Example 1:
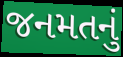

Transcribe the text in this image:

જનમતનું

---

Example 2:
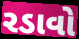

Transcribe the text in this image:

રડાવો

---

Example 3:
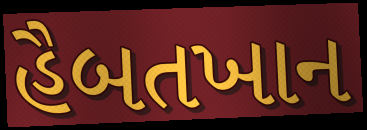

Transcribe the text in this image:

હૈબતખાન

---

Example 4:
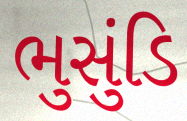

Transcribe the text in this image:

ભુસુંડિ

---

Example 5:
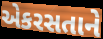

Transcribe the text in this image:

એકરસતાને